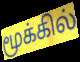
மூக்கில்